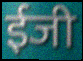
ईजी